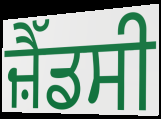
ਜ਼ੈੱਡਸੀ